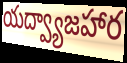
యద్వ్యాజహార